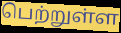
பெற்றுள்ள